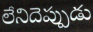
లేనిదెప్పుడు